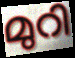
മുറി